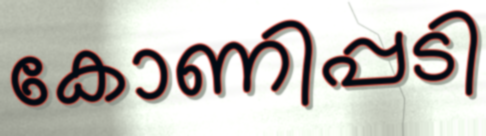
കോണിപ്പടി